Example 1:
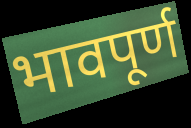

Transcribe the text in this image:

भावपूर्ण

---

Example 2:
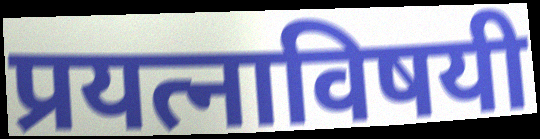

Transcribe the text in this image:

प्रयत्नाविषयी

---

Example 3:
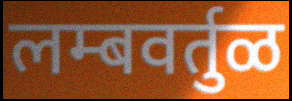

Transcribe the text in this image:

लम्बवर्तुळ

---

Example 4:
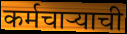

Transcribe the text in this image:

कर्मचाऱ्याची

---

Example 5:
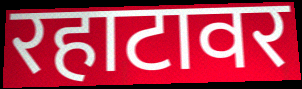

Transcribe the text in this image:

रहाटावर